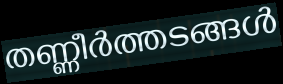
തണ്ണീർത്തടങ്ങൾ